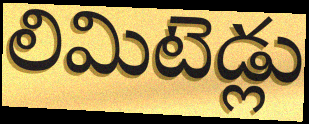
లిమిటెడ్లు